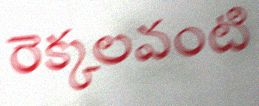
రెక్కలవంటి